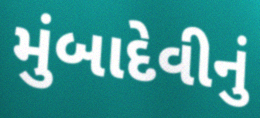
મુંબાદેવીનું